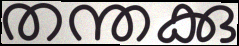
തന്തക്കു